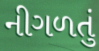
નીગળતું